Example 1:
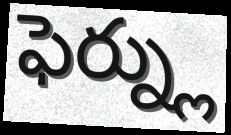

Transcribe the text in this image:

ఫెర్న్లు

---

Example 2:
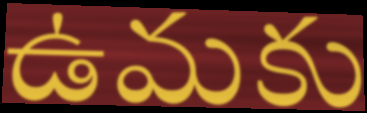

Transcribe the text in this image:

ఉమకు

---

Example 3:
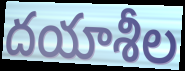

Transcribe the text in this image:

దయాశీల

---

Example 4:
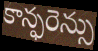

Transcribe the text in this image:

కాన్ఫరెన్సు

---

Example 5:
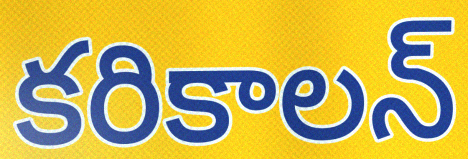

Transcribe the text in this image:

కరికాలన్